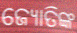
ଜ୍ୟୋତିଙ୍କ